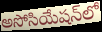
అసోసియేషన్‌లో